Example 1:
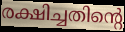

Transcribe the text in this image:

രക്ഷിച്ചതിന്റെ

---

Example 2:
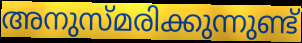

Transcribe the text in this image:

അനുസ്മരിക്കുന്നുണ്ട്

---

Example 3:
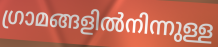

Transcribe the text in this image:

ഗ്രാമങ്ങളിൽനിന്നുള്ള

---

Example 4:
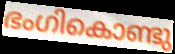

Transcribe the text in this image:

ഭംഗികൊണ്ടു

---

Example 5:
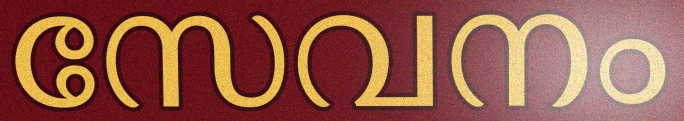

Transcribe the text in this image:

സേവനം